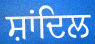
ਸ਼ਾਂਦਿਲ